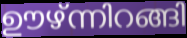
ഊഴ്ന്നിറങ്ങി